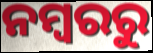
ନମ୍ବରରୁ